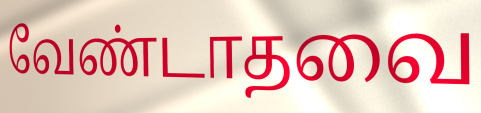
வேண்டாதவை